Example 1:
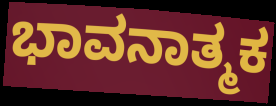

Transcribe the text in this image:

ಭಾವನಾತ್ಮಕ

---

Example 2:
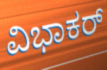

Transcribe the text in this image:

ವಿಭಾಕರ್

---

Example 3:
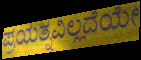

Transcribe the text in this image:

ಪ್ರಯತ್ನವಿಲ್ಲದೆಯೇ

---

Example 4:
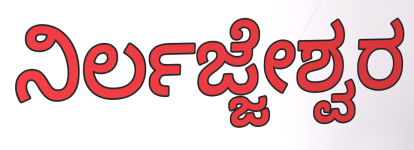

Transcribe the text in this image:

ನಿರ್ಲಜ್ಜೇಶ್ವರ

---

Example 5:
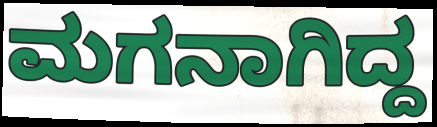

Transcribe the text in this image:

ಮಗನಾಗಿದ್ದ